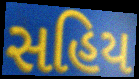
સહિય